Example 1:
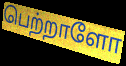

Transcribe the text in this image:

பெற்றாளோ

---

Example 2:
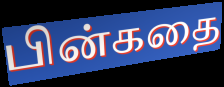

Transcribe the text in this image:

பின்கதை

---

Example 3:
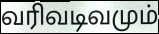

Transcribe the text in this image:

வரிவடிவமும்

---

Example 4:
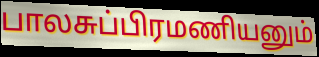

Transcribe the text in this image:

பாலசுப்பிரமணியனும்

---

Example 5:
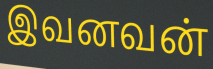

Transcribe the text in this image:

இவனவன்